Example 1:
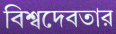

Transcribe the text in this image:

বিশ্বদেবতার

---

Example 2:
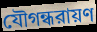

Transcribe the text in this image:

যৌগন্ধরায়ণ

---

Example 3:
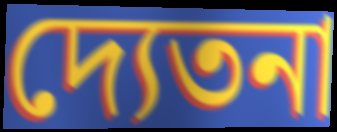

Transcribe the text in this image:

দ্যেতনা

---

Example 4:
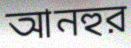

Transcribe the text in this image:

আনহুর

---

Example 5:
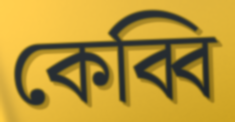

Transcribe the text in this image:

কেব্বি